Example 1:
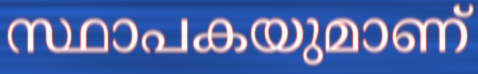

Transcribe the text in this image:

സ്ഥാപകയുമാണ്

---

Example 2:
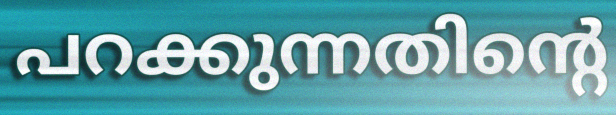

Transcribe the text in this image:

പറക്കുന്നതിന്റെ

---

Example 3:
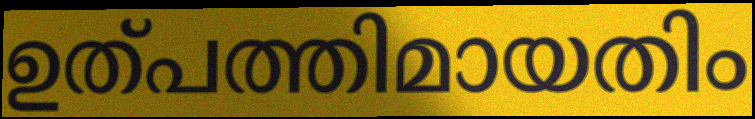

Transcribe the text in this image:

ഉത്പത്തിമായതിം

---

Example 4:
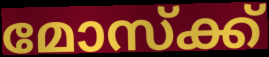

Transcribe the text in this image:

മോസ്ക്ക്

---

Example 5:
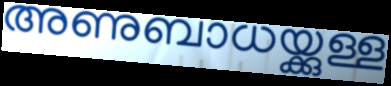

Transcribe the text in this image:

അണുബാധയ്ക്കുള്ള